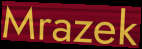
Mrazek